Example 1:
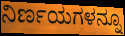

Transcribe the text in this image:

ನಿರ್ಣಯಗಳನ್ನೂ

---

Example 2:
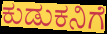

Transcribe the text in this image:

ಕುಡುಕನಿಗೆ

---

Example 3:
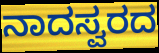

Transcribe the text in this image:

ನಾದಸ್ವರದ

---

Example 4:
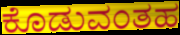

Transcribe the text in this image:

ಕೊಡುವಂತಹ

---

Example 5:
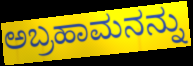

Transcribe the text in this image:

ಅಬ್ರಹಾಮನನ್ನು